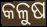
କଳୁଷ